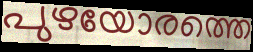
പുഴയോരത്തെ